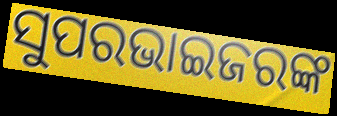
ସୁପରଭାଇଜରଙ୍କ